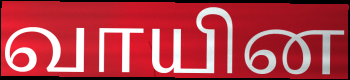
வாயின